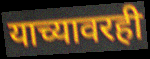
याच्यावरही